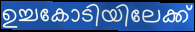
ഉച്ചകോടിയിലേക്ക്